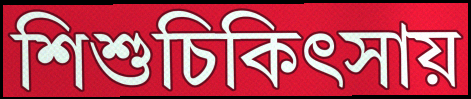
শিশুচিকিৎসায়